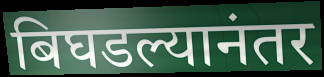
बिघडल्यानंतर